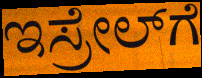
ಇಸ್ರೇಲ್‍ಗೆ